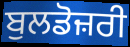
ਬੁਲਡੋਜ਼ਰੀ